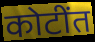
कोटींत